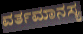
ವರ್ತಮಾನಸ್ಯ